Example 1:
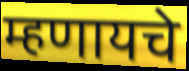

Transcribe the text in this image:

म्हणायचे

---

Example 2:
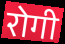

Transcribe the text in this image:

रोगी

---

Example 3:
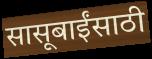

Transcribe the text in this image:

सासूबाईंसाठी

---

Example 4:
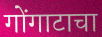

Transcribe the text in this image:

गोंगाटाचा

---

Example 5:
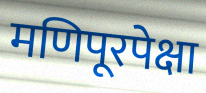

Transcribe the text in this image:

मणिपूरपेक्षा